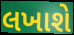
લખાશે